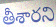
తీశారని